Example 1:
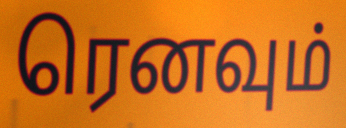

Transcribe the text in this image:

ரெனவும்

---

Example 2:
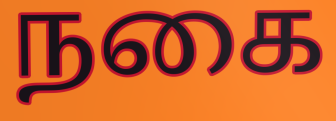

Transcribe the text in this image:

நகை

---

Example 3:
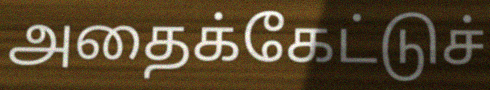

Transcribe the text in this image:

அதைக்கேட்டுச்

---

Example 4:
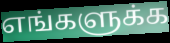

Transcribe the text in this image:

எங்களுக்க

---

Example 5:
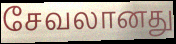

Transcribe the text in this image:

சேவலானது